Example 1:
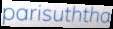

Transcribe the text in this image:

parisuththa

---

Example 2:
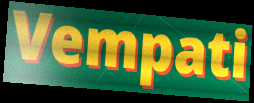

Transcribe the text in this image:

Vempati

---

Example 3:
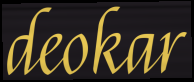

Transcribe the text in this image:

deokar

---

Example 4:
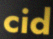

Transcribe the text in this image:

cid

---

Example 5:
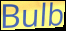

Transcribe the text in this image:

Bulb